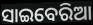
ସାଇବେରିଆ